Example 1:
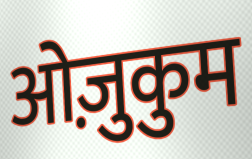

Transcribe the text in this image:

ओज़ुकुम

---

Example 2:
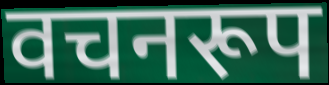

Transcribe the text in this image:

वचनरूप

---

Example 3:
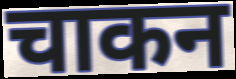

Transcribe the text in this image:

चाकन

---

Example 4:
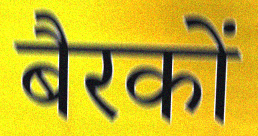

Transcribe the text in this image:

बैरकों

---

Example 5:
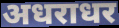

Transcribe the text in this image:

अधराधर